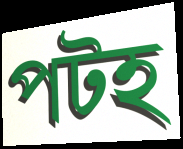
পটহ